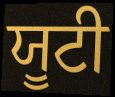
ਯੂਟੀ